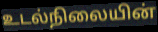
உடல்நிலையின்